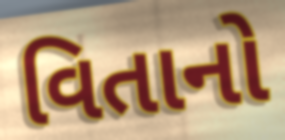
વિતાનો